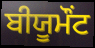
ਬੀਯੂਮੌਂਟ